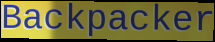
Backpacker